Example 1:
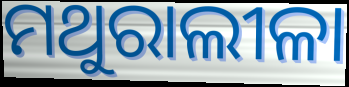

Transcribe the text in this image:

ମଥୁରାଲୀଳା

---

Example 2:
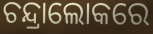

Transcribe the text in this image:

ଚନ୍ଦ୍ରାଲୋକରେ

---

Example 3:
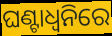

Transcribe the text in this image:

ଘଣ୍ଟାଧ୍ୱନିରେ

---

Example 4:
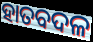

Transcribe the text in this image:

ହାତବଦଳ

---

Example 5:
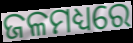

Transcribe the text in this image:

ଜଳମଧ୍ଯରେ